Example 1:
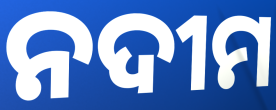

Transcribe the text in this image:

ନଦୀମ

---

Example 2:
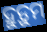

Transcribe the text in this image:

ହୁଡ଼ୁମ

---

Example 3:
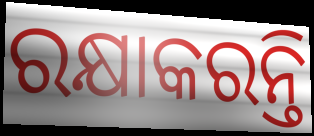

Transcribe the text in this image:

ରକ୍ଷାକରନ୍ତି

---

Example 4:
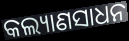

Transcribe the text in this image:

କଲ୍ୟାଣସାଧନ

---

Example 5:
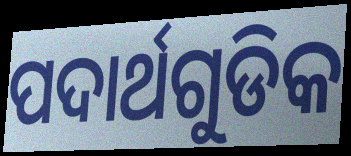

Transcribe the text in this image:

ପଦାର୍ଥଗୁଡିକ